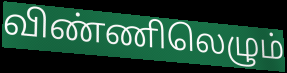
விண்ணிலெழும்